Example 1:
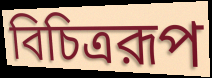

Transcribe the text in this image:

বিচিত্ররূপ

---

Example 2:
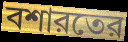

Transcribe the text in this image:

বশারতের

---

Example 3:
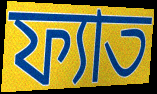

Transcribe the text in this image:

ফ্যাত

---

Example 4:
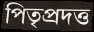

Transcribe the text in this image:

পিতৃপ্রদত্ত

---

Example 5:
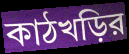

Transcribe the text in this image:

কাঠখড়ির